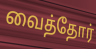
வைத்தோர்